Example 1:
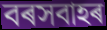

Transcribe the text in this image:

বৰসবাহৰ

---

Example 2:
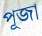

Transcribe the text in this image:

পূজা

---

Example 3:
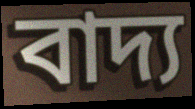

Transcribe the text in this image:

বাদ্য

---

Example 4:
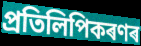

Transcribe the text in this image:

প্ৰতিলিপিকৰণৰ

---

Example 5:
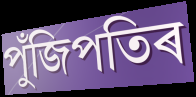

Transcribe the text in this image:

পুঁজিপতিৰ